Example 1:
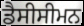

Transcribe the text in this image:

ਡੈਸੀਸੀਮਨ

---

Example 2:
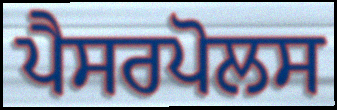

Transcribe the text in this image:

ਪੈਸਰਪੋਲਸ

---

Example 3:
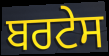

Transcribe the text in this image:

ਬਰਟੇਸ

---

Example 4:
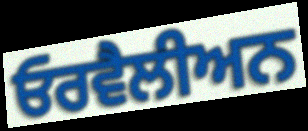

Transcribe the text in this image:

ਓਰਵੈਲੀਅਨ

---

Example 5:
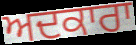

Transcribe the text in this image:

ਅਦਕਾਰਾ